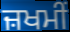
ਜ਼ਖਮੀਂ